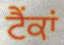
ਟੈਂਕਾਂ